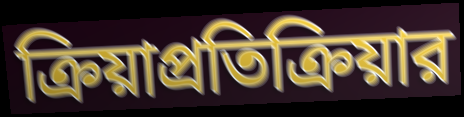
ক্রিয়াপ্রতিক্রিয়ার